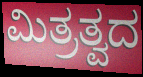
ಮಿತ್ರತ್ವದ